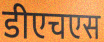
डीएचएस